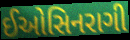
ઈઓસિનરાગી